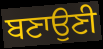
ਬਣਾਉਣੀ